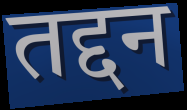
तद्दन